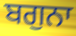
ਬਗੁਨਾ